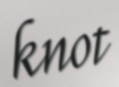
knot